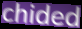
chided